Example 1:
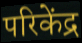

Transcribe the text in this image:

परिकेंद्र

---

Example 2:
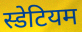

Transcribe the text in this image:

स्डेटियम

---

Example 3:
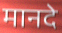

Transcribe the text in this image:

मानदे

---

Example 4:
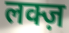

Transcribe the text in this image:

लक्ज़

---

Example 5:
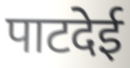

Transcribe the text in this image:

पाटदेई